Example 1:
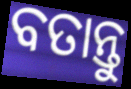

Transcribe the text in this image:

ବତାନ୍ତୁ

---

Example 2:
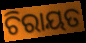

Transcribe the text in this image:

ଚିରାୟତ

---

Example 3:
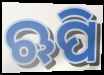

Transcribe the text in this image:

ଋପି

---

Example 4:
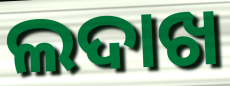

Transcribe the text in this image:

ଲଦାଖ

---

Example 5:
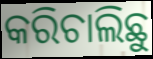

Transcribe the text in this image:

କରିଚାଲିଛୁ